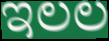
ಇಲಲ